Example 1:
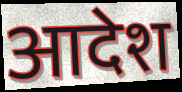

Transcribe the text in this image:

आदेश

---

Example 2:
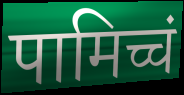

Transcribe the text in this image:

पामिच्चं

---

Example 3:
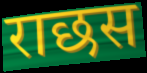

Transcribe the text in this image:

राछस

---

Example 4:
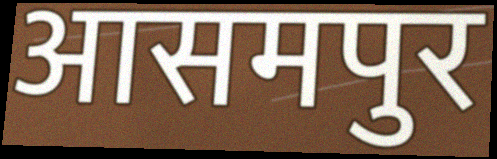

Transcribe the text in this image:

आसमपुर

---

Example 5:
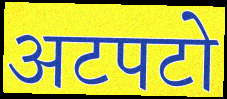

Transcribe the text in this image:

अटपटो